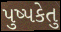
પુષ્પકેતુ